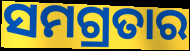
ସମଗ୍ରତାର